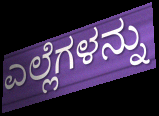
ಎಲ್ಲೆಗಳನ್ನು